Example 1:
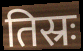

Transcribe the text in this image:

तिस्रः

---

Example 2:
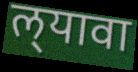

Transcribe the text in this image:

ल्यावा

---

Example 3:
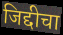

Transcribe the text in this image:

जिद्दीचा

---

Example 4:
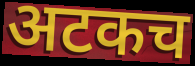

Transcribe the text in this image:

अटकच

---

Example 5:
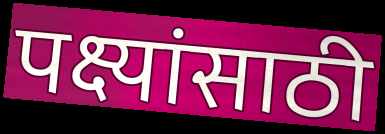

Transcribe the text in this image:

पक्ष्यांसाठी